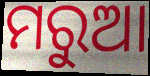
ମରୁଆ